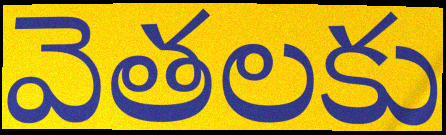
వెతలకు